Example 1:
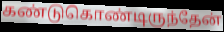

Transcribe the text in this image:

கண்டுகொண்டிருந்தேன்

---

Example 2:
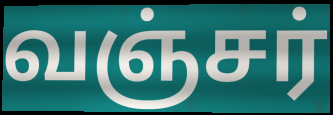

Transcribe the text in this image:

வஞ்சர்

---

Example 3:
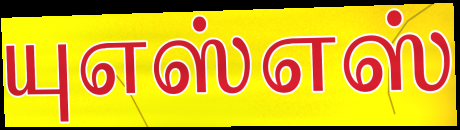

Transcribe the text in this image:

யுஎஸ்எஸ்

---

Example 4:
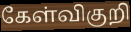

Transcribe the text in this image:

கேள்விகுறி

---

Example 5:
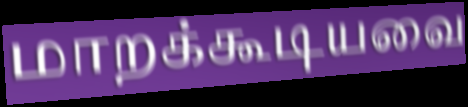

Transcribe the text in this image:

மாறக்கூடியவை